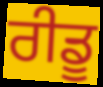
ਰੀਡੂ